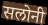
सलोनी